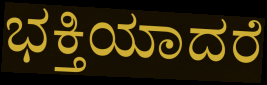
ಭಕ್ತಿಯಾದರೆ